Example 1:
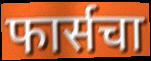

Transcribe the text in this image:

फार्सचा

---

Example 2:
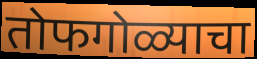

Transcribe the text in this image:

तोफगोळ्याचा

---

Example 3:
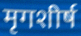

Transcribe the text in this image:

मृगशीर्ष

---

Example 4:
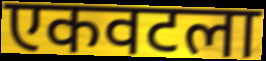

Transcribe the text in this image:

एकवटला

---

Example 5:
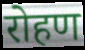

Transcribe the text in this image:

रोहण